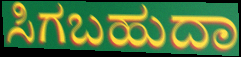
ಸಿಗಬಹುದಾ